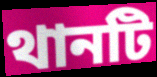
থানটি